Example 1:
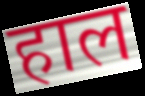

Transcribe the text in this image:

हाल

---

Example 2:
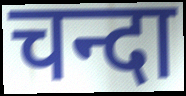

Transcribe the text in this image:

चन्दा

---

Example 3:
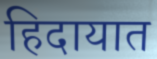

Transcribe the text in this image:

हिदायात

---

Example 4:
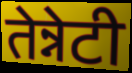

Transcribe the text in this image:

तेन्नेटी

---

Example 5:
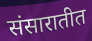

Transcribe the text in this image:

संसारातीत